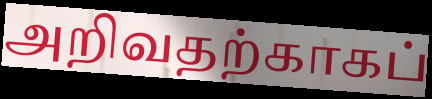
அறிவதற்காகப்